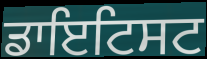
ਡਾਇਟਿਸਟ